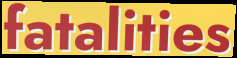
fatalities